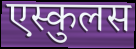
एस्कुलस